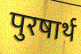
पुरषार्थ